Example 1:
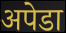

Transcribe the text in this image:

अपेडा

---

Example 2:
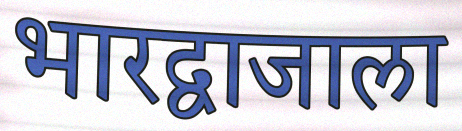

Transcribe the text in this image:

भारद्वाजाला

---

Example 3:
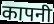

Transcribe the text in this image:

कापनी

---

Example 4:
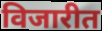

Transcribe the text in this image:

विजारीत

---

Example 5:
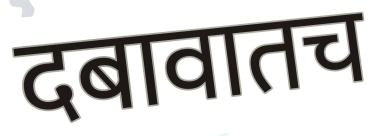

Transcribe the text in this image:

दबावातच